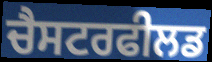
ਚੈਸਟਰਫੀਲਡ